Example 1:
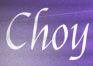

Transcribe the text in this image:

Choy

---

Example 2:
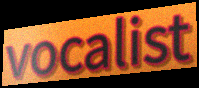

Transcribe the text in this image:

vocalist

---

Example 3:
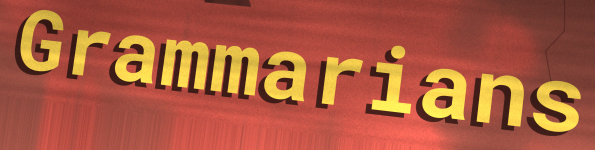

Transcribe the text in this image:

Grammarians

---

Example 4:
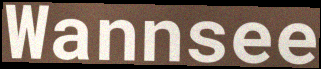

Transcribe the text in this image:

Wannsee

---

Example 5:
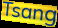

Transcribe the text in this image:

Tsang